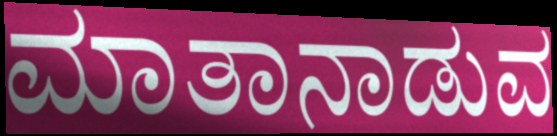
ಮಾತಾನಾಡುವ